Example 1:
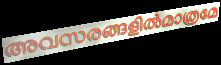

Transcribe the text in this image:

അവസരങ്ങളിൽമാത്രമേ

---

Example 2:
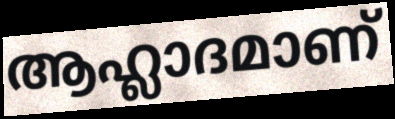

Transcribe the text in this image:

ആഹ്ലാദമാണ്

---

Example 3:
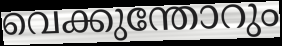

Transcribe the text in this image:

വെക്കുന്തോറും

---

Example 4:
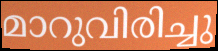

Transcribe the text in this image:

മാറുവിരിച്ചു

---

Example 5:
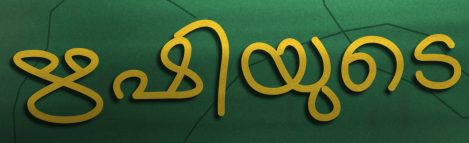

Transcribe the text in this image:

ഋഷിയുടെ